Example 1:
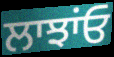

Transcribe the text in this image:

ਲਾਝਾਂਓ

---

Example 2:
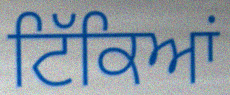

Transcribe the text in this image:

ਟਿੱਕਿਆਂ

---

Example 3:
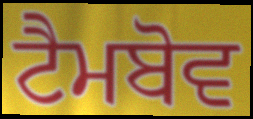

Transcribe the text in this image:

ਟੈਮਬੋਵ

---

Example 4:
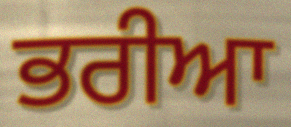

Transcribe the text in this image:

ਭਰੀਆ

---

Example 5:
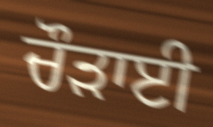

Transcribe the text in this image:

ਚੌੜਾਈ